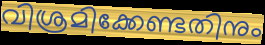
വിശ്രമിക്കേണ്ടതിനും